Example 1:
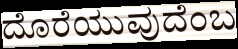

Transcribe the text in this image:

ದೊರೆಯುವುದೆಂಬ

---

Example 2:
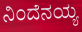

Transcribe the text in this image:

ನಿಂದೆನಯ್ಯ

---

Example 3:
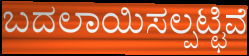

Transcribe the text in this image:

ಬದಲಾಯಿಸಲ್ಪಟ್ಟಿವೆ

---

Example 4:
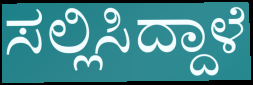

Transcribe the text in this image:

ಸಲ್ಲಿಸಿದ್ದಾಳೆ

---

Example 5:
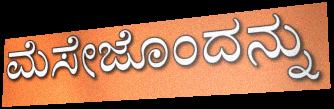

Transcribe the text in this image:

ಮೆಸೇಜೊಂದನ್ನು